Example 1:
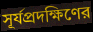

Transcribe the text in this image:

সূর্যপ্রদক্ষিণের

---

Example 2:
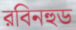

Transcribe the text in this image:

রবিনহুড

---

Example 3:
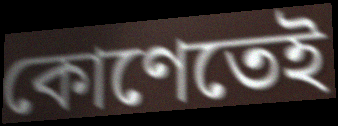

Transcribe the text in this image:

কোণেতেই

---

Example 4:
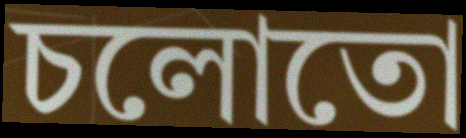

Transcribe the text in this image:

চলোতো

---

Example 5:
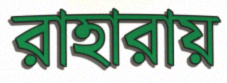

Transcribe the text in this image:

রাহারায়